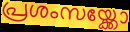
പ്രശംസയ്ക്കോ